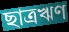
ছাত্রঋণ